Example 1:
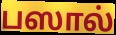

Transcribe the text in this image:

பஸால்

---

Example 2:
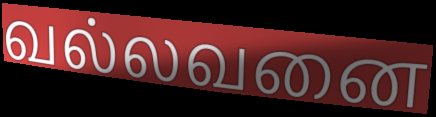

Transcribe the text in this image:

வல்லவனை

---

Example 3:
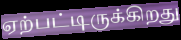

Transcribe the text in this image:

ஏற்பட்டிருக்கிறது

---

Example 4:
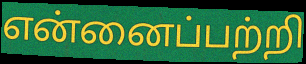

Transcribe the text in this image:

என்னைப்பற்றி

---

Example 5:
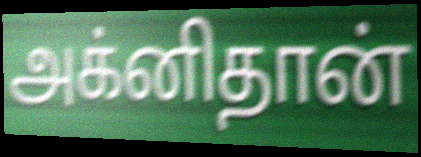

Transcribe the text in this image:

அக்னிதான்